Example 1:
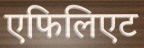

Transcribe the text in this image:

एफिलिएट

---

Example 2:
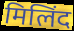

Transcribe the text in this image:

मिलिंद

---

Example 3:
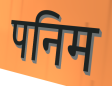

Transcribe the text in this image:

पनिम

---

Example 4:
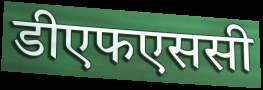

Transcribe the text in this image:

डीएफएससी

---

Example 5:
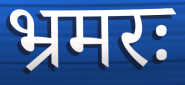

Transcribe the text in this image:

भ्रमरः